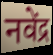
नवेंद्र